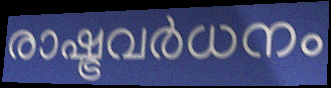
രാഷ്ട്രവർധനം